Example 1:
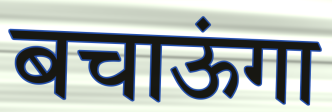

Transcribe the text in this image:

बचाऊंगा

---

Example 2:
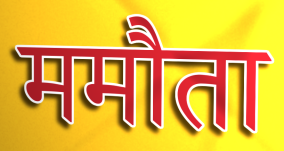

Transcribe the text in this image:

ममौता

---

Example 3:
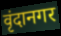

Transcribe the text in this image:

वृंदानगर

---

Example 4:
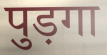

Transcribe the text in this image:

पुड़गा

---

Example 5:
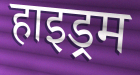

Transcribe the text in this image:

हाइड्रम